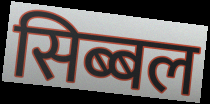
सिब्बल